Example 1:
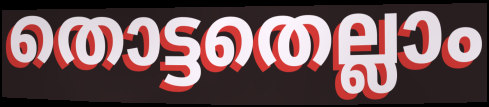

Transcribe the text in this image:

തൊട്ടതെല്ലാം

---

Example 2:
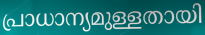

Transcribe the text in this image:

പ്രാധാന്യമുള്ളതായി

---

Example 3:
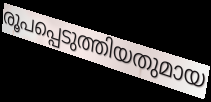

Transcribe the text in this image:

രൂപപ്പെടുത്തിയതുമായ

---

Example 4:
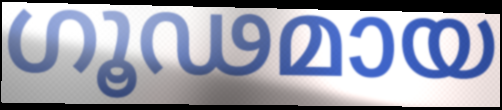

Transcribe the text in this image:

ഗൂഢമായ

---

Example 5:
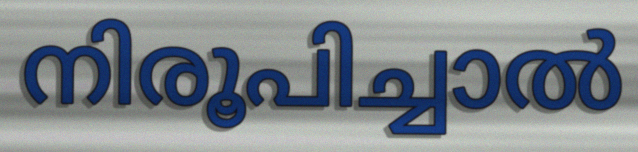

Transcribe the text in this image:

നിരൂപിച്ചാൽ